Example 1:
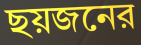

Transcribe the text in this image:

ছয়জনের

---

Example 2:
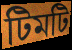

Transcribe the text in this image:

টিমটি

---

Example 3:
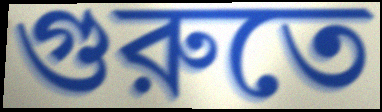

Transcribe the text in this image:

গুরুতে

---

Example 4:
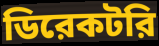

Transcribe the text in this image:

ডিরেকটরি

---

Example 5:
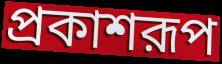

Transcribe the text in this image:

প্রকাশরূপ